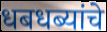
धबधब्यांचे